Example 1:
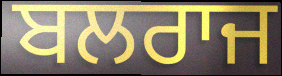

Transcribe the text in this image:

ਬਲਰਾਜ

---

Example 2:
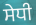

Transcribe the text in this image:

ਸੇਧੀ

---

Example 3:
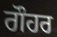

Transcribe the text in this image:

ਗੌਹਰ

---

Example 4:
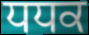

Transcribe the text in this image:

ਧਧਕ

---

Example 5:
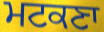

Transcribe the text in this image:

ਮਟਕਣਾ